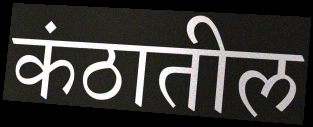
कंठातील